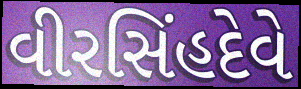
વીરસિંહદેવે